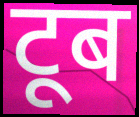
टूब